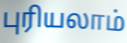
புரியலாம்